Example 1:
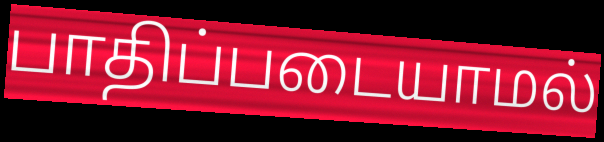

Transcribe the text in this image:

பாதிப்படையாமல்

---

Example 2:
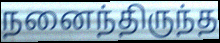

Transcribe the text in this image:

நனைந்திருந்த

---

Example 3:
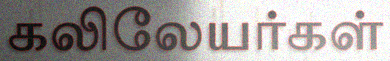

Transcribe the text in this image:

கலிலேயர்கள்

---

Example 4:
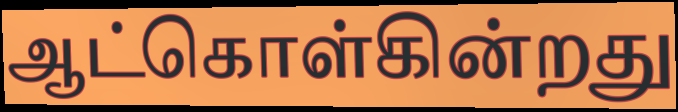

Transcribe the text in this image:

ஆட்கொள்கின்றது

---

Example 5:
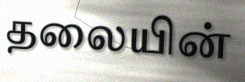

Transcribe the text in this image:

தலையின்